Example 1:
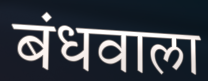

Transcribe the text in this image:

बंधवाला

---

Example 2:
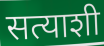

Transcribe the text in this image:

सत्याशी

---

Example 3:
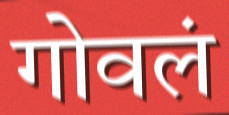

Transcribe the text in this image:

गोवलं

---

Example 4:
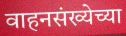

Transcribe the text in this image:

वाहनसंख्येच्या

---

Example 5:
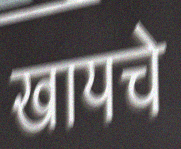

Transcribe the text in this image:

खायचे